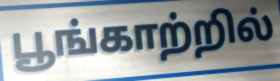
பூங்காற்றில்